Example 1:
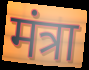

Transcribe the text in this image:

मंत्रा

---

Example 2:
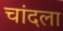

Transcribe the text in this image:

चांदला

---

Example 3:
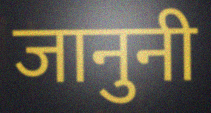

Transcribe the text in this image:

जानुनी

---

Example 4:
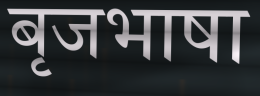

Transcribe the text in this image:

बृजभाषा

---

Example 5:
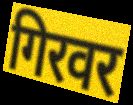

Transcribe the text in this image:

गिरवर